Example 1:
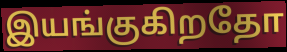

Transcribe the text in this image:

இயங்குகிறதோ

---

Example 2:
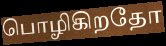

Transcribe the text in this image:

பொழிகிறதோ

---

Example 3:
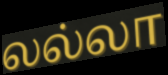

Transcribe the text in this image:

லல்லா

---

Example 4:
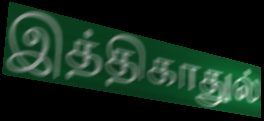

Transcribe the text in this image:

இத்திகாதுல்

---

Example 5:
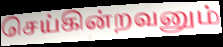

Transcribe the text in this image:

செய்கின்றவனும்